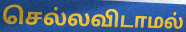
செல்லவிடாமல்